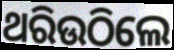
ଥରିଉଠିଲେ